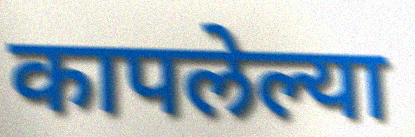
कापलेल्या